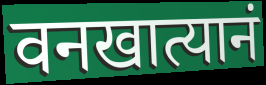
वनखात्यानं